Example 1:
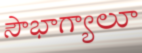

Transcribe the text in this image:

సౌభాగ్యాలూ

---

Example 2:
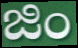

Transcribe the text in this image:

జిం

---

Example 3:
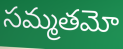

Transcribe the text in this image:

సమ్మతమో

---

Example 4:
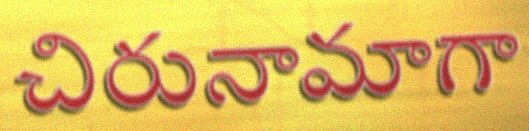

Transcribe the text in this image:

చిరునామాగా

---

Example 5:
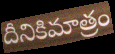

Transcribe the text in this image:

దీనికిమాత్రం